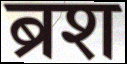
ब्रश